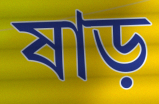
ষাড়